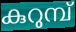
കുറുമ്പ്